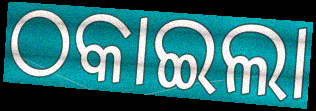
ଠକାଇଲା